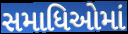
સમાધિઓમાં